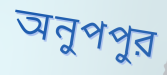
অনুপপুর